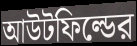
আউটফিল্ডের